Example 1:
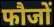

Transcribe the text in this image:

फौजों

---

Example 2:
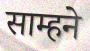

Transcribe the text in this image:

साम्हने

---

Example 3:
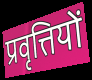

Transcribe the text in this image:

प्रवृत्तियों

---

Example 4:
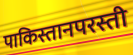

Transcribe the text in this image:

पाकिस्तानपरस्ती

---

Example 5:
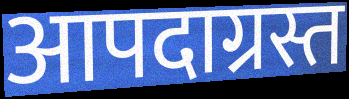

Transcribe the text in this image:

आपदाग्रस्त